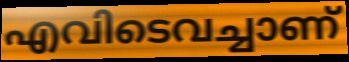
എവിടെവച്ചാണ്